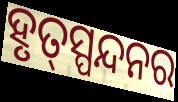
ହୃତ୍‌ସ୍ପନ୍ଦନର